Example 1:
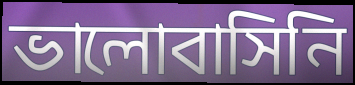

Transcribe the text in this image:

ভালোবাসিনি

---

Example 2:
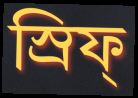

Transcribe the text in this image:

স্রিফ্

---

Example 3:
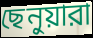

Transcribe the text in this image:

ছেনুয়ারা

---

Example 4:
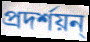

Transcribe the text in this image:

প্রদর্শয়ন্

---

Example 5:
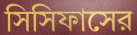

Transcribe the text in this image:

সিসিফাসের